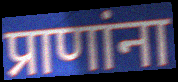
प्राणांना